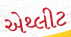
એથ્લીટ